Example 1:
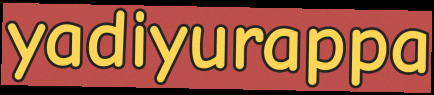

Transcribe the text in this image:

yadiyurappa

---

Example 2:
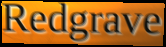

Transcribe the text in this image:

Redgrave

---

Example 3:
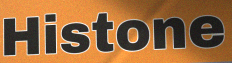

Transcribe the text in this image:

Histone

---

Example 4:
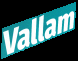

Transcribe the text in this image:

Vallam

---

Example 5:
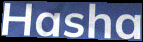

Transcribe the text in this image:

Hasha